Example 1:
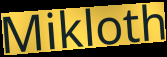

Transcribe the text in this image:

Mikloth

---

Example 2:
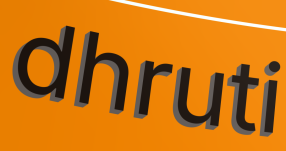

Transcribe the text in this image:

dhruti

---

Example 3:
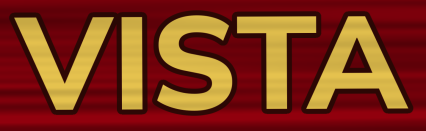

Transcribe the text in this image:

VISTA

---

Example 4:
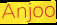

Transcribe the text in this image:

Anjoo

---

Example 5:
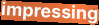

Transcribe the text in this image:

impressing